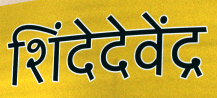
शिंदेदेवेंद्र